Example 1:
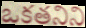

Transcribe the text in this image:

ఒకతనిని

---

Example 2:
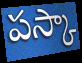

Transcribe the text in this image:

పస్కా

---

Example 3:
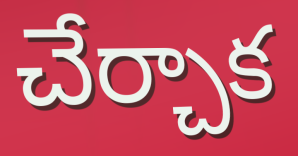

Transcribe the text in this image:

చేర్చాక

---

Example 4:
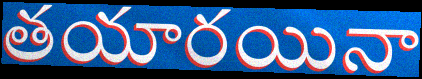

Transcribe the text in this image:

తయారయినా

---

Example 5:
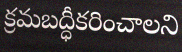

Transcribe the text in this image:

క్రమబద్ధీకరించాలని